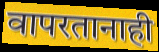
वापरतानाही